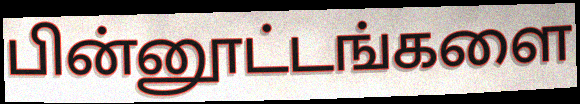
பின்னூட்டங்களை